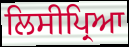
ਲਿਸੀਪ੍ਰਿਆ